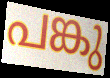
പങ്കു